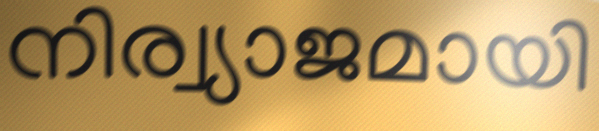
നിര്വ്യാജമായി